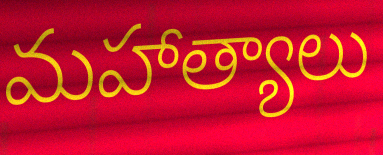
మహాత్యాలు